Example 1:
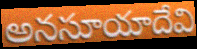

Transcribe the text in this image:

అనసూయాదేవి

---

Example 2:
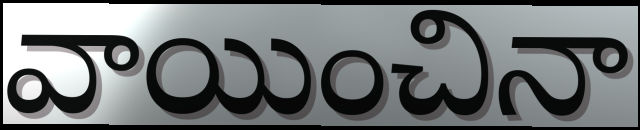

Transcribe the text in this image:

వాయించినా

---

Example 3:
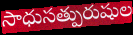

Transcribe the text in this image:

సాధుసత్పురుషుల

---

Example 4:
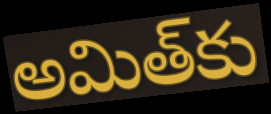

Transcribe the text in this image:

అమిత్‌కు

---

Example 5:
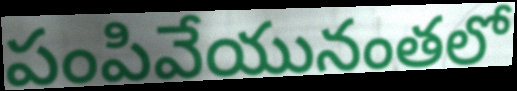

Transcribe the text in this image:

పంపివేయునంతలో